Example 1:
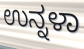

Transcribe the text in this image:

ಉನ್ನಳಾ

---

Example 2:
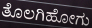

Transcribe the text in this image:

ತೊಲಗಿಹೋಗು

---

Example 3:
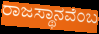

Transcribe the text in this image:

ರಾಜಸ್ಥಾನವೆಂಬ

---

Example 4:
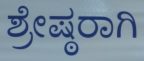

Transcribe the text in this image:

ಶ್ರೇಷ್ಠರಾಗಿ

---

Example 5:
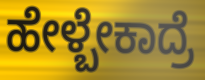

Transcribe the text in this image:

ಹೇಳ್ಬೇಕಾದ್ರೆ